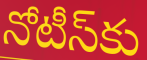
నోటీస్‌కు